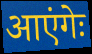
आएंगेः